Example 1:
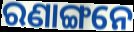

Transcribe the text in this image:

ରଣାଙ୍ଗନେ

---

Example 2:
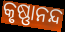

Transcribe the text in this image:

କୃଷ୍ଣାନନ୍ଦ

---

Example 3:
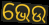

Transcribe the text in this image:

ଭେଉ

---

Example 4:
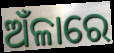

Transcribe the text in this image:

ଅଁଳାରେ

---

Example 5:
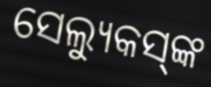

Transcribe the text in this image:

ସେଲ୍ୟୁକସ୍‌ଙ୍କ